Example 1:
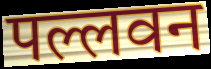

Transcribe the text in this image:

पल्लवन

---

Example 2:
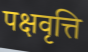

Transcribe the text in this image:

पक्षवृत्ति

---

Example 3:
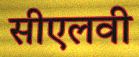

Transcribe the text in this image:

सीएलवी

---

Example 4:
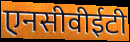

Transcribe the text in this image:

एनसीवीईटी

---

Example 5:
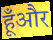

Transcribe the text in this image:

हूँऔर